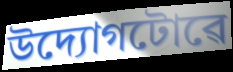
উদ্যোগটোৱে